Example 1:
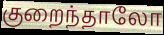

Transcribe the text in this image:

குறைந்தாலோ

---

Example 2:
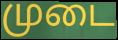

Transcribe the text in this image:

முடை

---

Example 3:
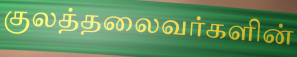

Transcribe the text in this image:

குலத்தலைவர்களின்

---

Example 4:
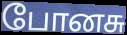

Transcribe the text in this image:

போனசு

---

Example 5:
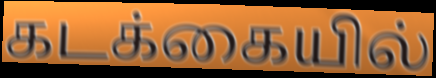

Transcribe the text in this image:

கடக்கையில்